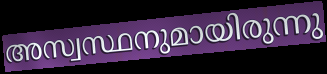
അസ്വസ്ഥനുമായിരുന്നു